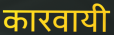
कारवायी